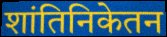
शांतिनिकेतन